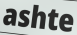
ashte